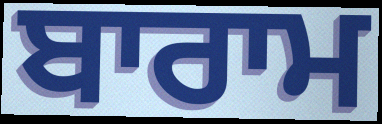
ਬਾਰਾਮ